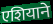
एशियाने